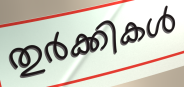
തുർക്കികൾ